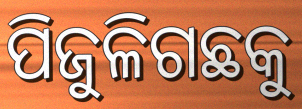
ପିଜୁଳିଗଛକୁ